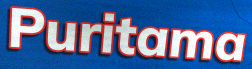
Puritama